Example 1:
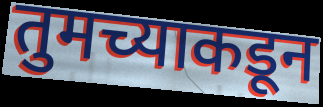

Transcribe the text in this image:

तुमच्याकडून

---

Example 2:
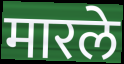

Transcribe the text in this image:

मारले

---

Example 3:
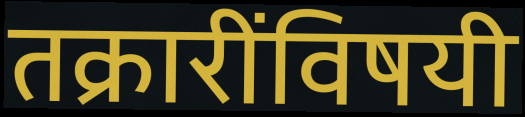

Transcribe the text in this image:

तक्रारींविषयी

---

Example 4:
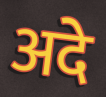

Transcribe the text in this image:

अदे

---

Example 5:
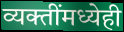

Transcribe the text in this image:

व्यक्तींमध्येही